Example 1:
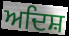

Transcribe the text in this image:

ਅਦਿਸ਼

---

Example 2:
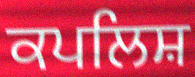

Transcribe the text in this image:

ਕਪਲਿਸ਼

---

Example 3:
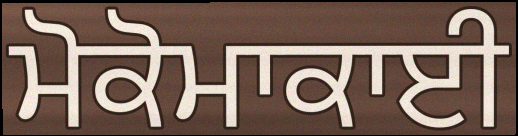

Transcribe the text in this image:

ਮੋਕੋਮਾਕਾਈ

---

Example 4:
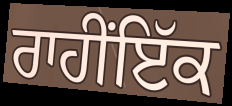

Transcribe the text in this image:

ਰਾਹੀਂਇੱਕ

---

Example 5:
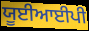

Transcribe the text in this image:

ਯੂਈਆਈਪੀ